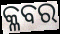
କ୍ଳବର